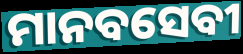
ମାନବସେବୀ